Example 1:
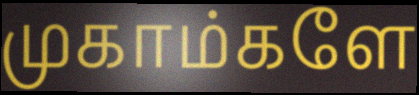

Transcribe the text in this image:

முகாம்களே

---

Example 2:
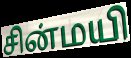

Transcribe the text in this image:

சின்மயி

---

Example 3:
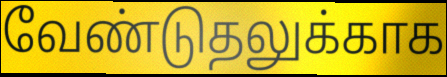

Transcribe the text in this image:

வேண்டுதலுக்காக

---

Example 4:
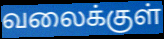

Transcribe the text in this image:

வலைக்குள்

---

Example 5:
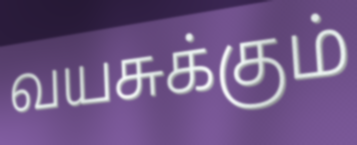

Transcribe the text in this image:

வயசுக்கும்